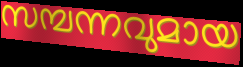
സമ്പന്നവുമായ